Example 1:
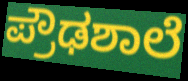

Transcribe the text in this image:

ಪ್ರೌಢಶಾಲೆ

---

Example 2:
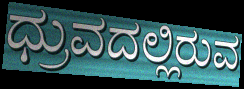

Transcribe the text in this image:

ಧ್ರುವದಲ್ಲಿರುವ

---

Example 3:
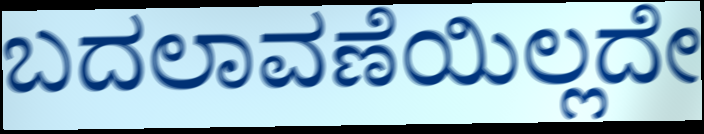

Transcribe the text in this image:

ಬದಲಾವಣೆಯಿಲ್ಲದೇ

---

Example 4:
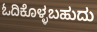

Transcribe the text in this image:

ಓದಿಕೊಳ್ಳಬಹುದು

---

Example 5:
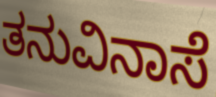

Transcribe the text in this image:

ತನುವಿನಾಸೆ